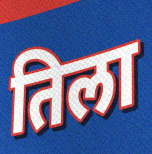
तिला